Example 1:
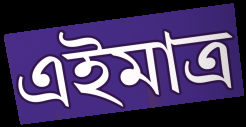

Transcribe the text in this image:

এইমাত্র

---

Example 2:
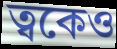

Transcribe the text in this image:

ত্বকেও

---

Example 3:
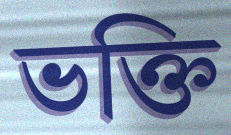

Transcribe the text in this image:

ভক্তি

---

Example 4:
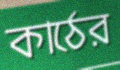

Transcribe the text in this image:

কাঠের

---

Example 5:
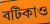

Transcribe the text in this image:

বটিকাও